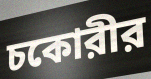
চকোরীর